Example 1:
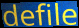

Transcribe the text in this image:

defile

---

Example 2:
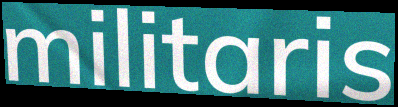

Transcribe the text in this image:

militaris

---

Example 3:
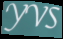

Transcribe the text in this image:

YVS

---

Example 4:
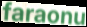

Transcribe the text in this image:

faraonu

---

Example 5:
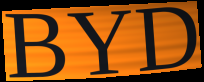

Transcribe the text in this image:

BYD